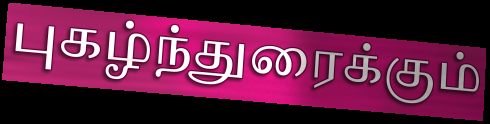
புகழ்ந்துரைக்கும்